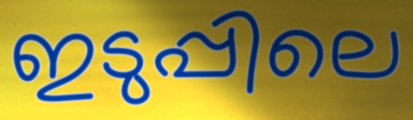
ഇടുപ്പിലെ